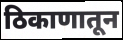
ठिकाणातून